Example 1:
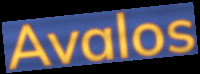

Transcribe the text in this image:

Avalos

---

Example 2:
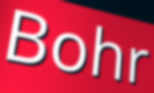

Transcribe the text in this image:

Bohr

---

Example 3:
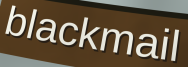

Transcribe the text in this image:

blackmail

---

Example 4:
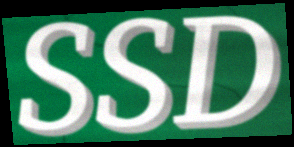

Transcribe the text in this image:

SSD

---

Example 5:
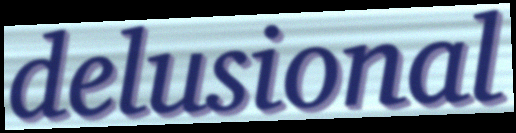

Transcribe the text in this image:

delusional